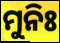
ମୁନିଃ